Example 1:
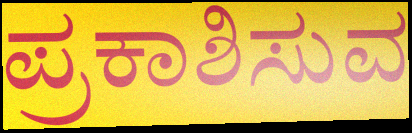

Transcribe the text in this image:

ಪ್ರಕಾಶಿಸುವ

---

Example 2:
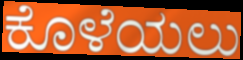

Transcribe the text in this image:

ಕೊಳೆಯಲು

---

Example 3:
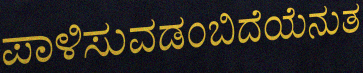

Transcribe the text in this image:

ಪಾಳಿಸುವಡಂಬಿದೆಯೆನುತ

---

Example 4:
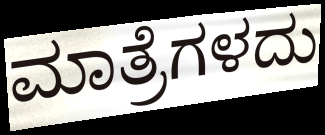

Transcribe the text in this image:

ಮಾತ್ರೆಗಳದು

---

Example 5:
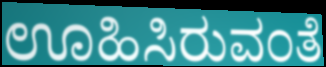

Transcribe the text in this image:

ಊಹಿಸಿರುವಂತೆ